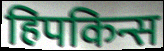
हिपकिन्स